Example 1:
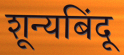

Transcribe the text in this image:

शून्यबिंदू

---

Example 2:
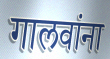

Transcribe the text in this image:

गालवांना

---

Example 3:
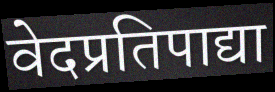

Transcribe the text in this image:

वेदप्रतिपाद्या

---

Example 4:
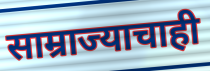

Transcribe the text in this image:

साम्राज्याचाही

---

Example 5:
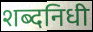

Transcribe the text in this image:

शब्दनिधी